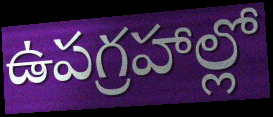
ఉపగ్రహాల్లో